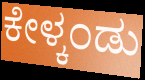
ಕೇಳ್ಕಂಡು